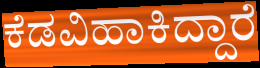
ಕೆಡವಿಹಾಕಿದ್ದಾರೆ